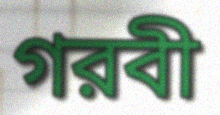
গরবী